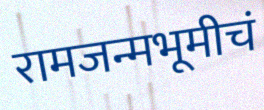
रामजन्मभूमीचं